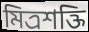
মিত্রশক্তি